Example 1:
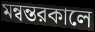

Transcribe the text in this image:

মন্বন্তরকালে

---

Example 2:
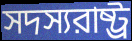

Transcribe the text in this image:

সদস্যরাষ্ট্র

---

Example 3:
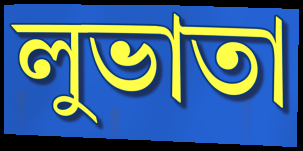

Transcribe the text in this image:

লুভাতা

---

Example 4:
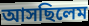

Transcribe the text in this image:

আসছিলেম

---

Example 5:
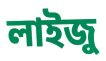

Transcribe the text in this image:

লাইজু